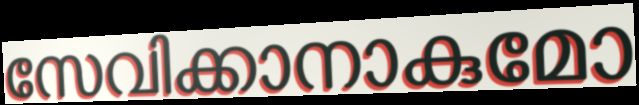
സേവിക്കാനാകുമോ